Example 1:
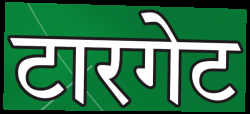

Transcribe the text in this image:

टारगेट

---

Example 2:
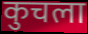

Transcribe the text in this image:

कुचला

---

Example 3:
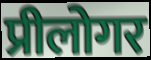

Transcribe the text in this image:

प्रीलोगर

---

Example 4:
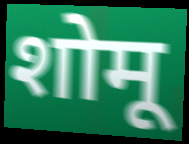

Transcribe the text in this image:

शोमू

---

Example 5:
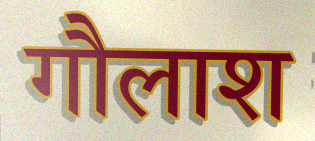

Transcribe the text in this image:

गौलाश